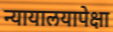
न्यायालयापेक्षा